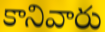
కానివారు